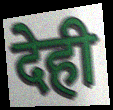
देही